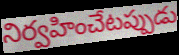
నిర్వహించేటప్పుడు